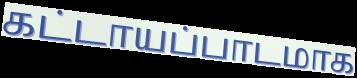
கட்டாயப்பாடமாக